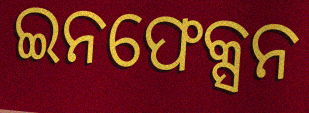
ଇନଫେକ୍ସନ